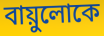
বায়ুলোকে